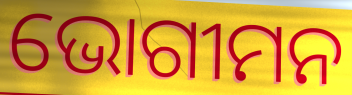
ଭୋଗୀମନ